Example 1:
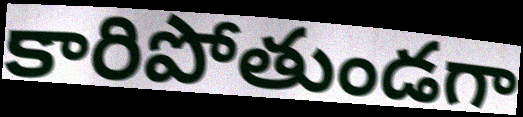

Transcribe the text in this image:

కారిపోతుండగా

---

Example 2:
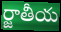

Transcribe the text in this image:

ర్జాతీయ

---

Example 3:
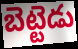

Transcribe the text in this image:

బెట్టెడు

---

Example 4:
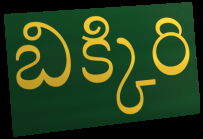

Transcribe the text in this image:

బిక్కిరి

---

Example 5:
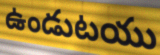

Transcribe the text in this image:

ఉండుటయు